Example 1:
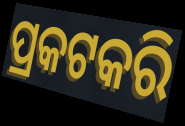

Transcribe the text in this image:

ପ୍ରକଟକରି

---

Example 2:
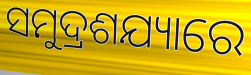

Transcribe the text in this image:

ସମୁଦ୍ରଶଯ୍ୟାରେ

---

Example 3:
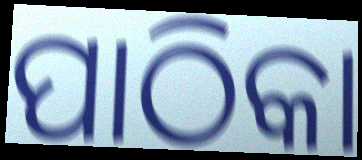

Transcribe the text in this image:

ପାଠିକା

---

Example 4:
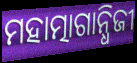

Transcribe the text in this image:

ମହାତ୍ମାଗାନ୍ଧିଜୀ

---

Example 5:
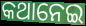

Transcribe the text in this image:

କଥାନେଇ